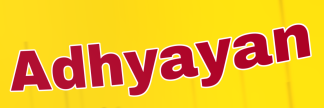
Adhyayan